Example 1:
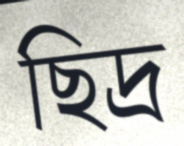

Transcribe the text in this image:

ছিদ্র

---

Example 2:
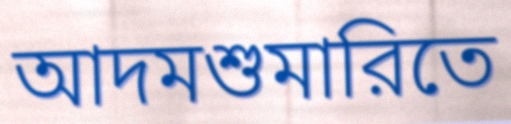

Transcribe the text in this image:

আদমশুমারিতে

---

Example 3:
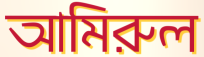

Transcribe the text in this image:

আমিরুল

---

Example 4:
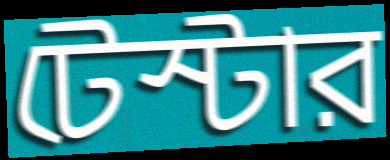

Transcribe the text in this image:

টেস্টার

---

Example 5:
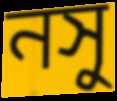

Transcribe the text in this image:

নসু